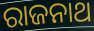
ରାଜନାଥ